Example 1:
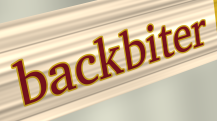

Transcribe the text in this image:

backbiter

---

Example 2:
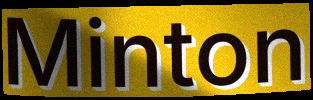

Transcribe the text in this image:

Minton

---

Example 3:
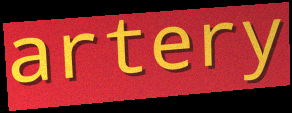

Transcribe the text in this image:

artery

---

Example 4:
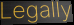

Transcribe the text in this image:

Legally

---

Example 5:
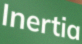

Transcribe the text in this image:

Inertia